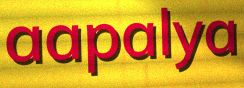
aapalya